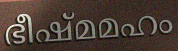
ഭീഷ്മമഹം